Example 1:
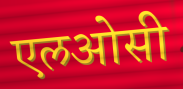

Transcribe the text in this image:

एलओसी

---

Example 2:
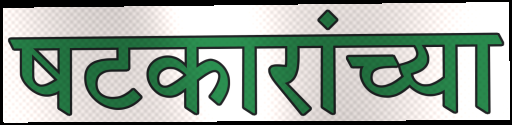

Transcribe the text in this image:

षटकारांच्या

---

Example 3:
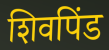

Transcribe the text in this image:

शिवपिंड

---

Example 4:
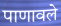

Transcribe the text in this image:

पाणावले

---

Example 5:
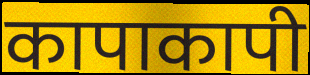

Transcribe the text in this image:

कापाकापी